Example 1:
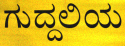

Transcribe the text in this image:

ಗುದ್ದಲಿಯ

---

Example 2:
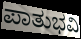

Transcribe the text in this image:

ಪಾತುಭವಿ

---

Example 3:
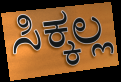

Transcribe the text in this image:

ಸಿಕ್ಕಲ್ಲ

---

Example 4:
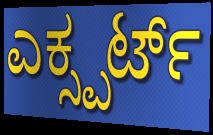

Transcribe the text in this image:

ಎಕ್ಸ್ಪರ್ಟ್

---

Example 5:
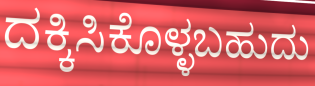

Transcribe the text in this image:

ದಕ್ಕಿಸಿಕೊಳ್ಳಬಹುದು